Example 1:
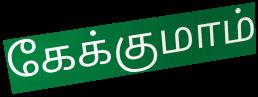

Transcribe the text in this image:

கேக்குமாம்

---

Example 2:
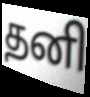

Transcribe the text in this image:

தனி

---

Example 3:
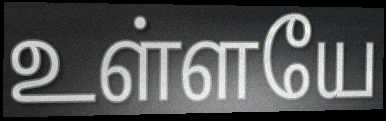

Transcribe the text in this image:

உள்ளயே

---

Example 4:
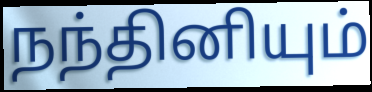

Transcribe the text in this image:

நந்தினியும்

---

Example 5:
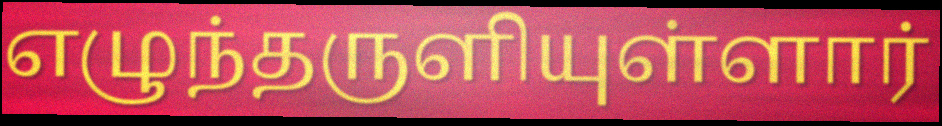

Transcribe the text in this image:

எழுந்தருளியுள்ளார்